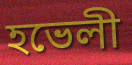
হভেলী